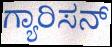
ಗ್ಯಾರಿಸನ್